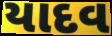
યાદવ